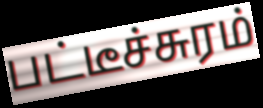
பட்டீச்சுரம்